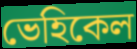
ভেহিকেল